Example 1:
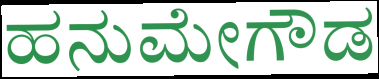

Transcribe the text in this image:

ಹನುಮೇಗೌಡ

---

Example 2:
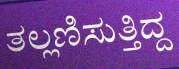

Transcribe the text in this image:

ತಲ್ಲಣಿಸುತ್ತಿದ್ದ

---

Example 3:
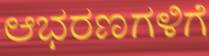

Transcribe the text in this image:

ಆಭರಣಗಳಿಗೆ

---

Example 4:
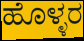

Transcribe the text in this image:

ಹೊಳ್ಳರ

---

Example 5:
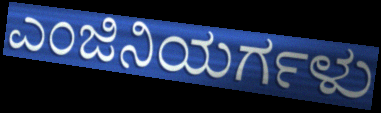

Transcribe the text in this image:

ಎಂಜಿನಿಯರ್ಗಳು